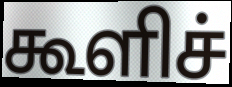
கூளிச்